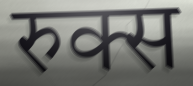
रुक्स